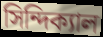
সিন্দিক্যাল